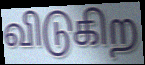
விடுகிற